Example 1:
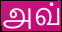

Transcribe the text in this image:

அவ்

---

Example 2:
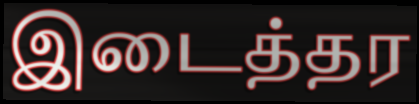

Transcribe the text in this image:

இடைத்தர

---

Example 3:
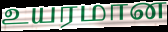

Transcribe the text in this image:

உயரமான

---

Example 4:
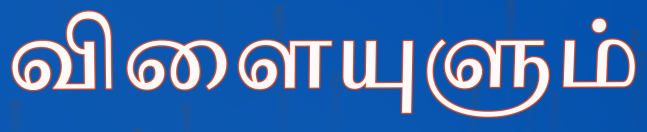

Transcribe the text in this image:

விளையுளும்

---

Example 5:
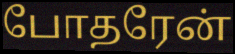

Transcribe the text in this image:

போதரேன்